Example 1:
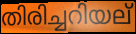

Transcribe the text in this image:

തിരിച്ചറിയല്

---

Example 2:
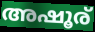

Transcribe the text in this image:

അഷൂര്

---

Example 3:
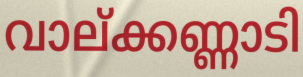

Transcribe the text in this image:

വാല്ക്കണ്ണാടി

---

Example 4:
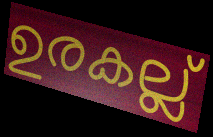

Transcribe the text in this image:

ഉരകല്ല്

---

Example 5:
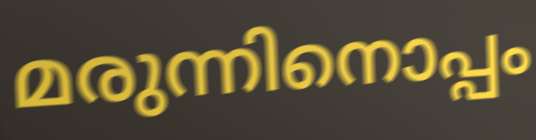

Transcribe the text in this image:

മരുന്നിനൊപ്പം